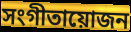
সংগীতায়োজন